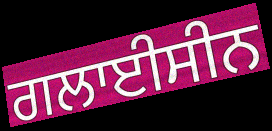
ਗਲਾਈਸੀਨ